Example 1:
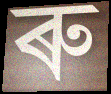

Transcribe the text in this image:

ৰু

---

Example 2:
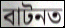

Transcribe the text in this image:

বাটনত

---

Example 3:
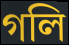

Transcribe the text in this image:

গলি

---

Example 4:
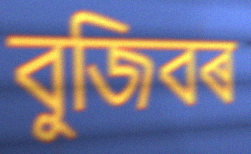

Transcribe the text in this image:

বুজিবৰ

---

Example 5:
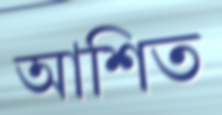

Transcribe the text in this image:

আশিত